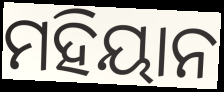
ମହିୟାନ